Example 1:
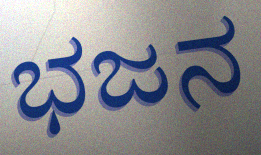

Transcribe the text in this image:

ಭಜನ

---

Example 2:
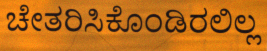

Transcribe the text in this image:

ಚೇತರಿಸಿಕೊಂಡಿರಲಿಲ್ಲ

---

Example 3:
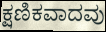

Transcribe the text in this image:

ಕ್ಷಣಿಕವಾದವು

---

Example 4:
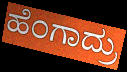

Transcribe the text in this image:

ಹೆಂಗಾದ್ರು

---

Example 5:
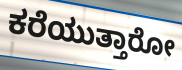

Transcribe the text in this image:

ಕರೆಯುತ್ತಾರೋ